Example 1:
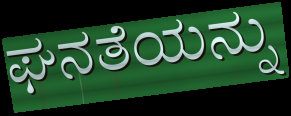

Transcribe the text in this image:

ಘನತೆಯನ್ನು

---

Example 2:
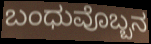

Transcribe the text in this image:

ಬಂಧುವೊಬ್ಬನ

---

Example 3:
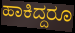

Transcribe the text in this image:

ಹಾಕಿದ್ದರೂ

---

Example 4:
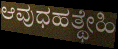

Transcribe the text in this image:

ಆವುಧಹತ್ಥೇಹಿ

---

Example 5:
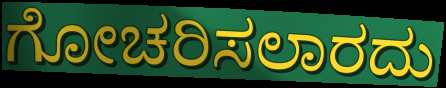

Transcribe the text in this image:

ಗೋಚರಿಸಲಾರದು